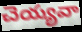
చెయ్యవా